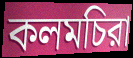
কলমচিরা